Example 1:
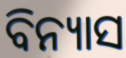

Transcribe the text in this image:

ବିନ୍ୟାସ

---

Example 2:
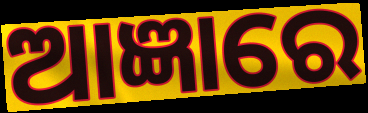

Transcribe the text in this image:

ଆଜ୍ଞାରେ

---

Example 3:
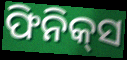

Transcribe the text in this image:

ଫିନିକ୍‍ସ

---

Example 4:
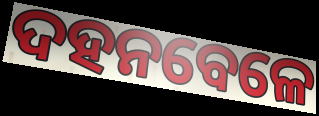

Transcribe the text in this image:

ଦହନବେଳେ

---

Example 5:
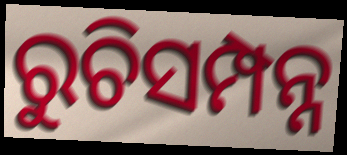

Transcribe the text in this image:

ରୁଚିସମ୍ପନ୍ନ